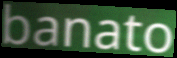
banato